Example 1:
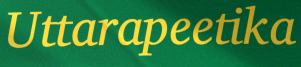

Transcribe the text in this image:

Uttarapeetika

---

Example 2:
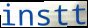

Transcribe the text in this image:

instt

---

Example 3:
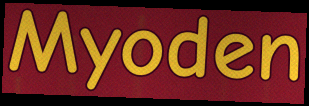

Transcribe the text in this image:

Myoden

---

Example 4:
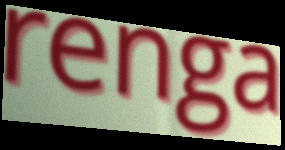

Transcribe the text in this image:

renga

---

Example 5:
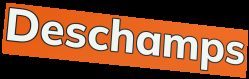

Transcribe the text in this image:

Deschamps